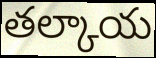
తల్కాయ